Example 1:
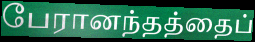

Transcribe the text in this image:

பேரானந்தத்தைப்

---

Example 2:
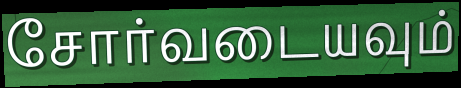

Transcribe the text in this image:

சோர்வடையவும்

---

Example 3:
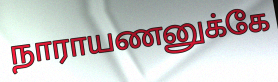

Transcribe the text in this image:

நாராயணனுக்கே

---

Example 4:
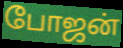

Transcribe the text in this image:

போஜன்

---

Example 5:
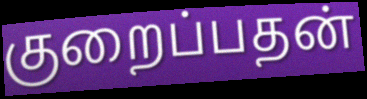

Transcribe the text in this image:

குறைப்பதன்